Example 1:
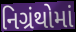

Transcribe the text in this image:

નિગ્રંથોમાં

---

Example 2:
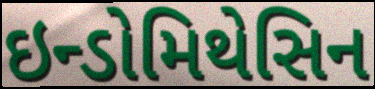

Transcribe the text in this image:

ઇન્ડોમિથેસિન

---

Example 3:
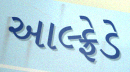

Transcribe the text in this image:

આલ્ફ્રેડે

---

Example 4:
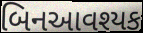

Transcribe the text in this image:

બિનઆવશ્યક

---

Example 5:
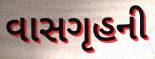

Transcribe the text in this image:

વાસગૃહની